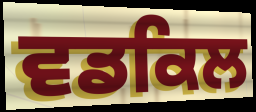
ਵਡਕਿਲ